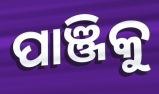
ପାଞ୍ଜିକୁ